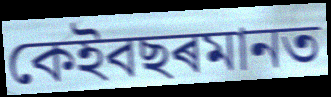
কেইবছৰমানত